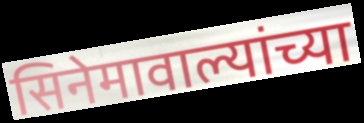
सिनेमावाल्यांच्या